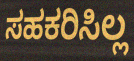
ಸಹಕರಿಸಿಲ್ಲ